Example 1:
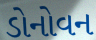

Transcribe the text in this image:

ડોનોવન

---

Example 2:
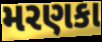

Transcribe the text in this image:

મરણકા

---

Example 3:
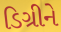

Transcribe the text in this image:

ડિગ્રીને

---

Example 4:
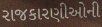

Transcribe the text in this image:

રાજકારણીઓની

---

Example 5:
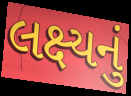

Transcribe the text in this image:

લક્ષ્યનું